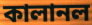
কালানল